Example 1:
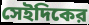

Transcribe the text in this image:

সেইদিকের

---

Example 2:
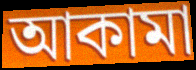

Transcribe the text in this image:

আকামা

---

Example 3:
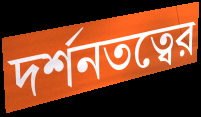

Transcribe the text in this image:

দর্শনতত্বের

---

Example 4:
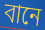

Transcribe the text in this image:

বানে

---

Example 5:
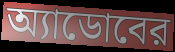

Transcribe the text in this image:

অ্যাডোবের